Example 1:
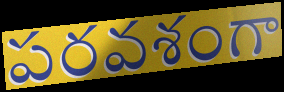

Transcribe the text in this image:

పరవశంగా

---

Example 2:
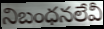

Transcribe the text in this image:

నిబంధనలేవీ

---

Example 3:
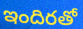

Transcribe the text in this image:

ఇందిరతో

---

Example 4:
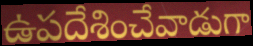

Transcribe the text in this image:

ఉపదేశించేవాడుగా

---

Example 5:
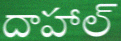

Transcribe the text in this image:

దాహాల్